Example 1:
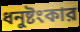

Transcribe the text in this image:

ধনুষ্টংকার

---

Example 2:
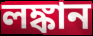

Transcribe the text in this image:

লঙ্কান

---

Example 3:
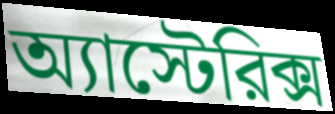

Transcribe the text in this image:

অ্যাস্টেরিক্স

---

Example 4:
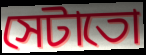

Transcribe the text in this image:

সেটাতো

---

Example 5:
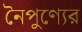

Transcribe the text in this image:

নৈপুণ্যের